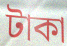
টাকা